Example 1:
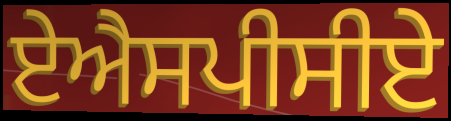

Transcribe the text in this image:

ਏਐਸਪੀਸੀਏ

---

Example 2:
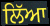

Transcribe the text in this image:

ਲਿੱਆ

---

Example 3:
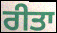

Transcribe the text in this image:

ਰੀਤਾ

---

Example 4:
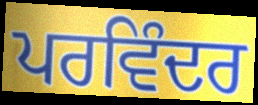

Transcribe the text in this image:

ਪਰਵਿੰਦਰ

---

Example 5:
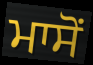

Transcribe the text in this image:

ਮਾਸੋਂ